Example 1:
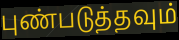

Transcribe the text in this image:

புண்படுத்தவும்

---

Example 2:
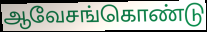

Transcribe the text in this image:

ஆவேசங்கொண்டு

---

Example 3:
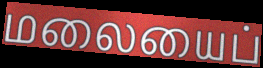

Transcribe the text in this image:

மலையைப்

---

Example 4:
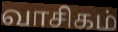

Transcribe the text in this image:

வாசிகம்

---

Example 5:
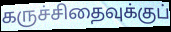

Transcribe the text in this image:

கருச்சிதைவுக்குப்